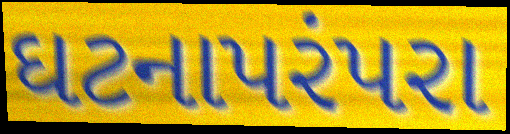
ઘટનાપરંપરા